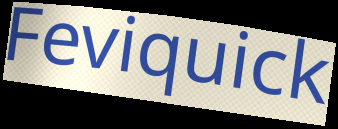
Feviquick